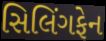
સિલિંગફેન